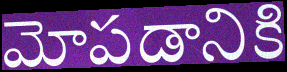
మోపడానికి